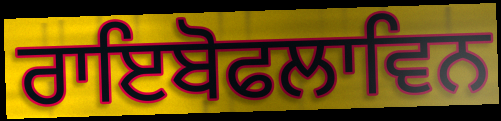
ਰਾਇਬੋਫਲਾਵਿਨ